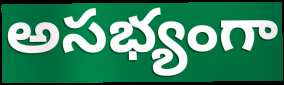
అసభ్యంగా